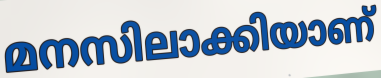
മനസിലാക്കിയാണ്